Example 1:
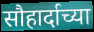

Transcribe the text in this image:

सौहार्दाच्या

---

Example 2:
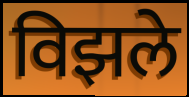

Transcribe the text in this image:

विझले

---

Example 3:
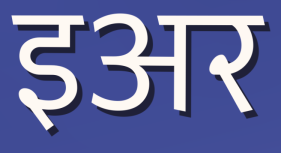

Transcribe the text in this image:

इअर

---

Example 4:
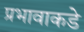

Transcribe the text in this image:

प्रभावाकडे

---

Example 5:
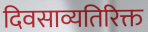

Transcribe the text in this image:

दिवसाव्यतिरिक्त